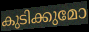
കുടിക്കുമോ